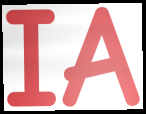
IA